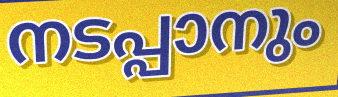
നടപ്പാനും